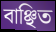
বাঞ্ছিত